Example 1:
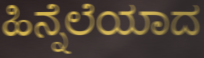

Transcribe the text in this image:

ಹಿನ್ನೆಲೆಯಾದ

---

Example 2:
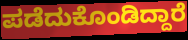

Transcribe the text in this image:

ಪಡೆದುಕೊಂಡಿದ್ದಾರೆ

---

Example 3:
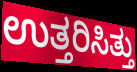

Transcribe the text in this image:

ಉತ್ತರಿಸಿತ್ತು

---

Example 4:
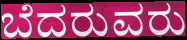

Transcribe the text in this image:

ಬೆದರುವರು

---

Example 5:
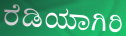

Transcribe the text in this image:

ರೆಡಿಯಾಗಿರಿ